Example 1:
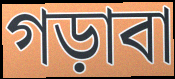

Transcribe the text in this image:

গড়াবা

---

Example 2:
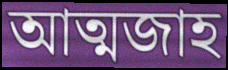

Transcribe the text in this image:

আত্মজাহ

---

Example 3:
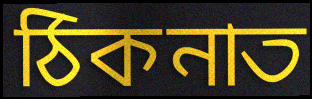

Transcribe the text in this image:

ঠিকনাত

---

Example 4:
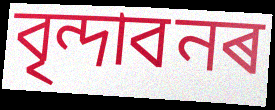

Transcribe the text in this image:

বৃন্দাবনৰ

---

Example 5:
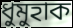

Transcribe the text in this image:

ধুমুহাক